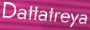
Dattatreya